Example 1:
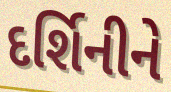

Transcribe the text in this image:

દર્શિનીને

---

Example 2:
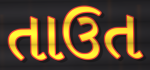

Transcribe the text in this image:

તાઉત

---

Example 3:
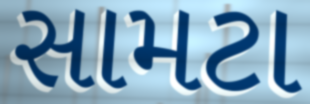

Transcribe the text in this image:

સામટા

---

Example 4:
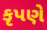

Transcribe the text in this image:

કૃપણે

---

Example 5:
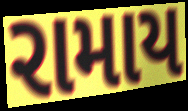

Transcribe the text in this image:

રામાય